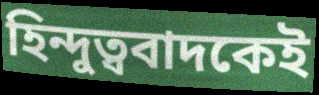
হিন্দুত্ববাদকেই